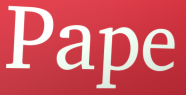
Pape